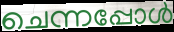
ചെന്നപ്പോൾ